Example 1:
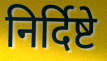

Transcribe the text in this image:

निर्दिष्टे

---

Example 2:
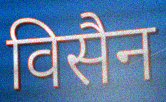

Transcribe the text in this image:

विसैन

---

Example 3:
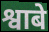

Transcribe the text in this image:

श्वाबे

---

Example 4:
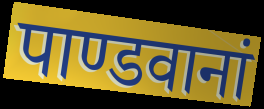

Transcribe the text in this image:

पाण्डवानां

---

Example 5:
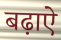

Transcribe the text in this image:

बढ़ाऐ